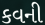
કવની